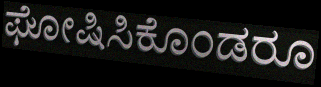
ಘೋಷಿಸಿಕೊಂಡರೂ